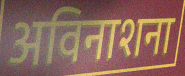
अविनाशना